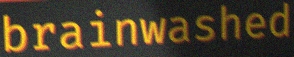
brainwashed